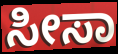
ಸೀಸಾ